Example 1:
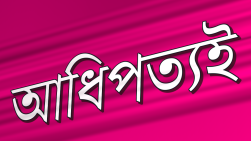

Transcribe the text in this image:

আধিপত্যই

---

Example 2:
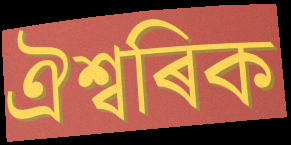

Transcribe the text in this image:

ঐশ্বৰিক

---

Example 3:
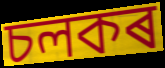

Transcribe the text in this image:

চলকৰ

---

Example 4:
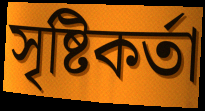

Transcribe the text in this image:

সৃষ্টিকৰ্তা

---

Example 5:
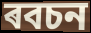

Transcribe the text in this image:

ৰবচন